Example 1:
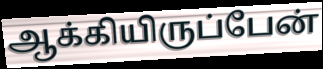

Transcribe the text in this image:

ஆக்கியிருப்பேன்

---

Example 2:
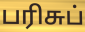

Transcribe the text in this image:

பரிசுப்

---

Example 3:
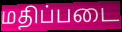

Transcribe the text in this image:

மதிப்படை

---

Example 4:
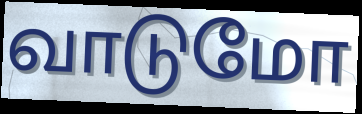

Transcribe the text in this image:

வாடுமோ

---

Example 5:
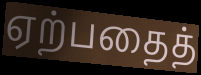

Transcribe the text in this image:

ஏற்பதைத்